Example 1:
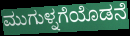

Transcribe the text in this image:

ಮುಗುಳ್ನಗೆಯೊಡನೆ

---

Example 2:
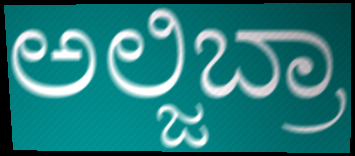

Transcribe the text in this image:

ಅಲ್ಜಿಬ್ರಾ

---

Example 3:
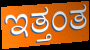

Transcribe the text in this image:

ಇತ್ತಂತ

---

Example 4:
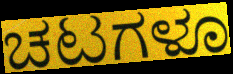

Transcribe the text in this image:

ಚಟಗಳೂ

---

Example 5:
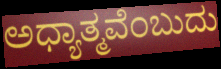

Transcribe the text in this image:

ಅಧ್ಯಾತ್ಮವೆಂಬುದು